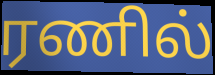
ரணில்